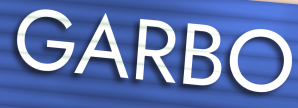
GARBO